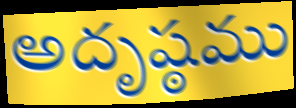
అదృష్ఠము